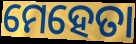
ମେହେତା